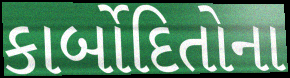
કાર્બોદિતોના